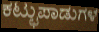
ಕಟ್ಟುಪಾಡುಗಳ